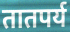
तातपर्य